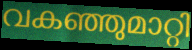
വകഞ്ഞുമാറ്റി